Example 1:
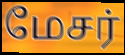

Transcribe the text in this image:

மேசர்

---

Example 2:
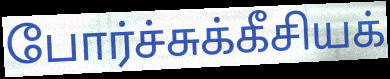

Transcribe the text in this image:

போர்ச்சுக்கீசியக்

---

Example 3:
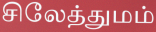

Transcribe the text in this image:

சிலேத்துமம்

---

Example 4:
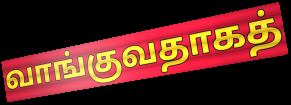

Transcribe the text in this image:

வாங்குவதாகத்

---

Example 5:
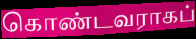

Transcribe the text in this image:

கொண்டவராகப்